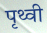
पृथ्वी